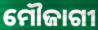
ମୌଜାଗୀ